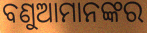
ବଣୁଆମାନଙ୍କର